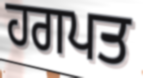
ਹਗਪਤ